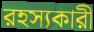
রহস্যকারী